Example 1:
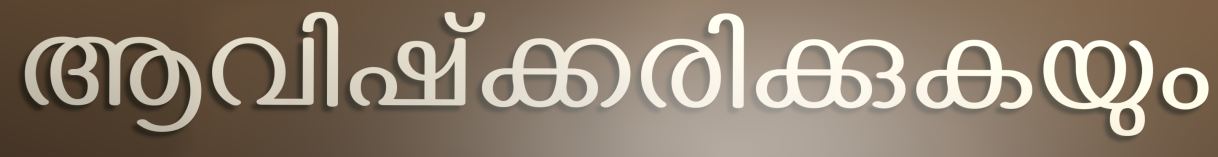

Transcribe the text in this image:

ആവിഷ്ക്കരിക്കുകയും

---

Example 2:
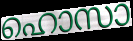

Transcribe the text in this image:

ഹൊസാ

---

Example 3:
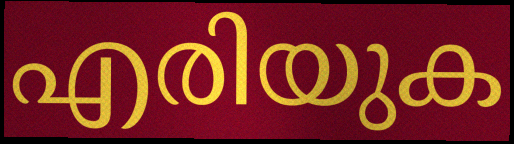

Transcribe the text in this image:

എരിയുക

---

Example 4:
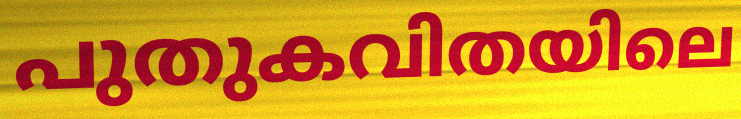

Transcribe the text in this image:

പുതുകവിതയിലെ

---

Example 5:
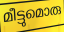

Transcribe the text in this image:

മീട്ടുമൊരു